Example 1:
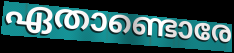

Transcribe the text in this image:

ഏതാണ്ടൊരേ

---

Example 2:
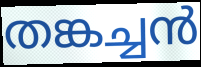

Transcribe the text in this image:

തങ്കച്ചൻ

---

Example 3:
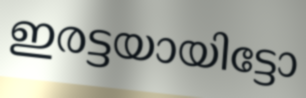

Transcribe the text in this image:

ഇരട്ടയായിട്ടോ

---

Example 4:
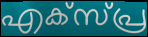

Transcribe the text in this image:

എക്സ്പ്ര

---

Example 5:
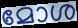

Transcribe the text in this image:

മോശ